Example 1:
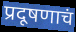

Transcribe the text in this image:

प्रदूषणाचं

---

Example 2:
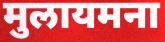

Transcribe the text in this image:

मुलायमना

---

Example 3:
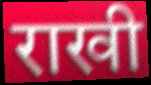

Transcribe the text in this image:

राखी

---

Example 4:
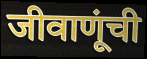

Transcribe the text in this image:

जीवाणूंची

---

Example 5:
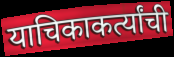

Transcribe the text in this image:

याचिकाकर्त्यांची